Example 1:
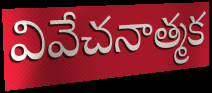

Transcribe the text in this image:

వివేచనాత్మక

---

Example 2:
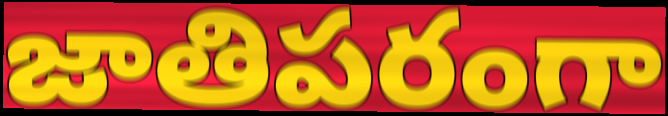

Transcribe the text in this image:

జాతిపరంగా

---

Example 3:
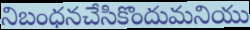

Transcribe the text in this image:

నిబంధనచేసికొందుమనియు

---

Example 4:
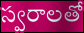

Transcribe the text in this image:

స్వరాలతో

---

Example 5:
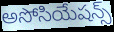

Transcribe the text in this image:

అసోసియేషన్స్